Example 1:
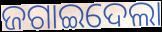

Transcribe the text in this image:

ଜଗାଇଦେଲା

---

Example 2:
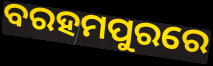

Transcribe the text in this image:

ବରହମପୁରରେ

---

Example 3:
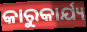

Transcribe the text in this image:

କାରୁକାର୍ଯ୍ୟ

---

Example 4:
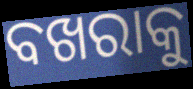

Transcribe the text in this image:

ବଖରାକୁ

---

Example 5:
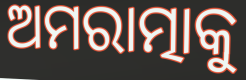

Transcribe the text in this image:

ଅମରାତ୍ମାକୁ